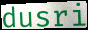
dusri